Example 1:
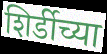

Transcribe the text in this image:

शिर्डीच्या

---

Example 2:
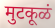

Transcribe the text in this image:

मुटकूळं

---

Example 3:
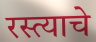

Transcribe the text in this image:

रस्त्याचे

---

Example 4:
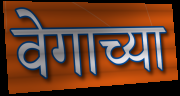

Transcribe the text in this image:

वेगाच्या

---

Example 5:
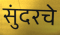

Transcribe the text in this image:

सुंदरचे